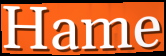
Hame